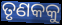
ତୃଣକକୁ